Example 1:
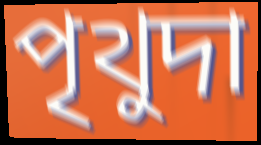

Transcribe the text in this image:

পৃথুদা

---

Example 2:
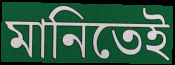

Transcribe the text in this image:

মানিতেই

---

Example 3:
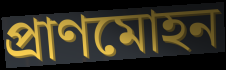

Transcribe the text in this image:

প্রাণমোহন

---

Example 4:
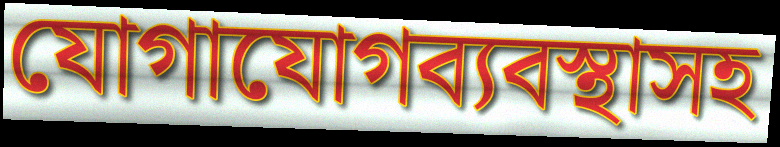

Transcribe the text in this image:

যোগাযোগব্যবস্থাসহ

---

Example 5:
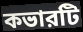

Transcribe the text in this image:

কভারটি